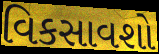
વિકસાવશો